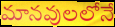
మానవులలోనే